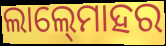
ଲାଲ୍‍ମୋହର